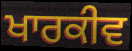
ਖਾਰਕੀਵ